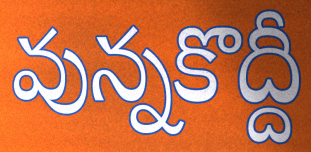
వున్నకొద్దీ